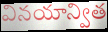
వినయాన్విత